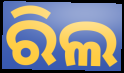
ରିଲ